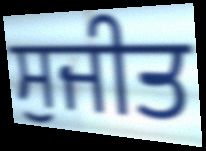
ਸੁਜੀਤ